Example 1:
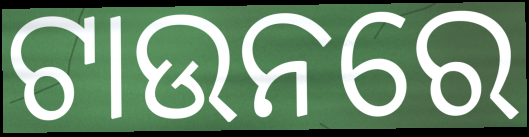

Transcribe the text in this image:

ଟାଉନରେ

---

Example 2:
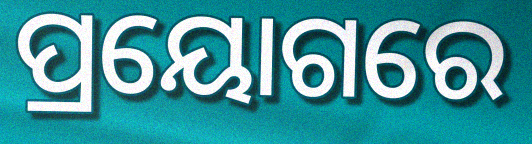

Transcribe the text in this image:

ପ୍ରୟୋଗରେ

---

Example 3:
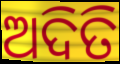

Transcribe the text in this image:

ଅଦିତି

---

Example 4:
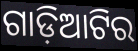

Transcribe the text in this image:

ଗାଡ଼ିଆଟିର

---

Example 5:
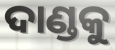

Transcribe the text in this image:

ଦାଣ୍ଡକୁ